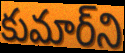
కుమార్‌ని